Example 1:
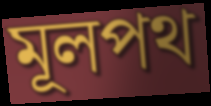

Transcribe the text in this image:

মূলপথ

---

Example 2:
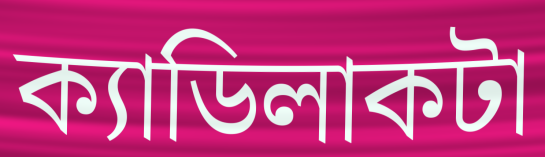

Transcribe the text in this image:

ক্যাডিলাকটা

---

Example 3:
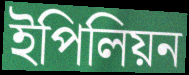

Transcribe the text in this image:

ইপিলিয়ন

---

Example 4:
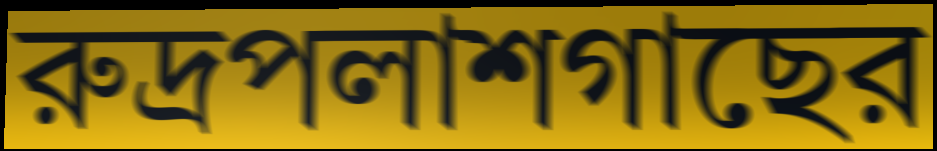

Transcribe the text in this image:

রুদ্রপলাশগাছের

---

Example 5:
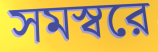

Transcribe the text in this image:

সমস্বরে